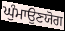
ਘੁੰਮਾਉਣਯੋਗ